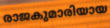
രാജകുമാരിയായ